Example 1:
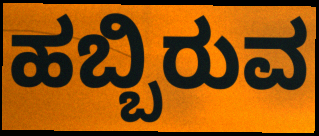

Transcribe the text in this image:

ಹಬ್ಬಿರುವ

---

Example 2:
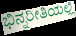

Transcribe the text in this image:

ಭಿನ್ನರೀತಿಯಲ್ಲಿ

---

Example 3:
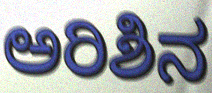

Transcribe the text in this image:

ಅರಿಶಿನ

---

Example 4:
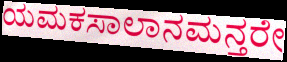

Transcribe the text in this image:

ಯಮಕಸಾಲಾನಮನ್ತರೇ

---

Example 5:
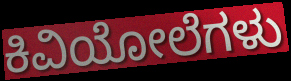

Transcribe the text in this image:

ಕಿವಿಯೋಲೆಗಳು